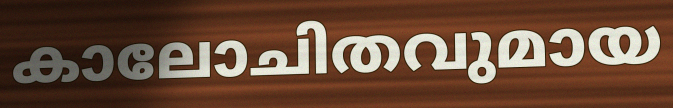
കാലോചിതവുമായ